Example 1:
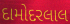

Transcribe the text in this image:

દામોદરલાલ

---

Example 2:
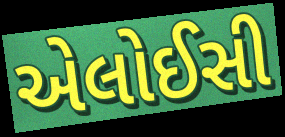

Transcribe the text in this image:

એલોઈસી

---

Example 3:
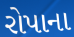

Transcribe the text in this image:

રોપાના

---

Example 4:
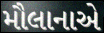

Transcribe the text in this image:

મૌલાનાએ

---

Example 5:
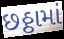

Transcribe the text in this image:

છઠ્ઠામાં